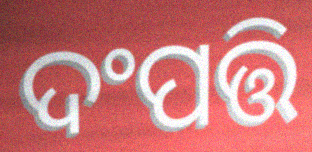
ଦଂପତ୍ତି